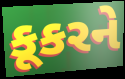
કૂકરને